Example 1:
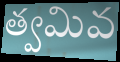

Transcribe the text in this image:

త్వమివ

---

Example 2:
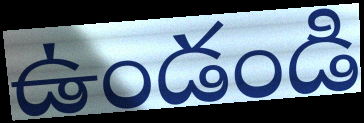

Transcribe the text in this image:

ఉండండి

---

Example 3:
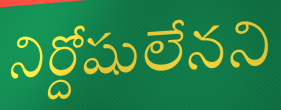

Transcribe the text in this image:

నిర్దోషులేనని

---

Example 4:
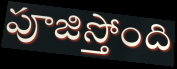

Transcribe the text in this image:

పూజిస్తోంది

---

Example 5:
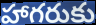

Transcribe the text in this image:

హాగరుకు